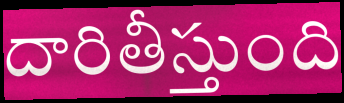
దారితీస్తుంది